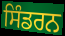
ਸਿੰਡਰਨ